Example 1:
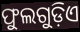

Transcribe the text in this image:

ଫୁଲଗୁଡ଼ିଏ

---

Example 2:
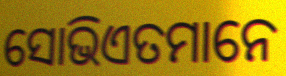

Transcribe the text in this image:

ସୋଭିଏତମାନେ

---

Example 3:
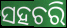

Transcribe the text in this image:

ସହଚରି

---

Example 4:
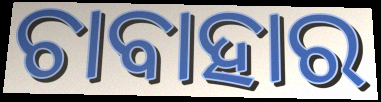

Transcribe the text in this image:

ଚାବାହାର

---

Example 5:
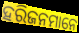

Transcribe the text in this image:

ହରିଜନମାନେ